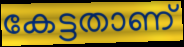
കേട്ടതാണ്